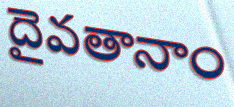
దైవతానాం